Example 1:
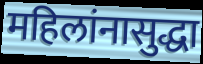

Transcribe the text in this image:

महिलांनासुद्धा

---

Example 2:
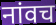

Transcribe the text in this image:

नांवच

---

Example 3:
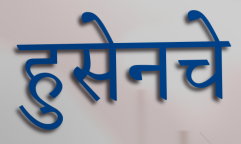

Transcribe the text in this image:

हुसेनचे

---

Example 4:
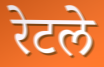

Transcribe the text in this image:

रेटले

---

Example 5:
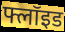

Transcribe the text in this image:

फ्लॉइड